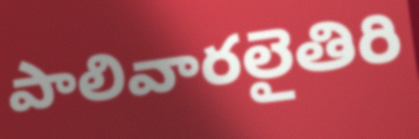
పాలివారలైతిరి